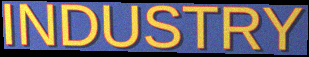
INDUSTRY